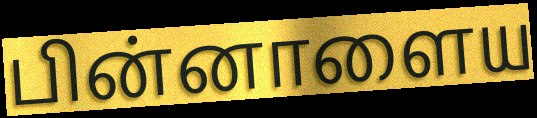
பின்னாளைய